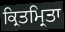
ਕ੍ਰਿਤਮ੍ਰਿਤਾ